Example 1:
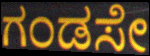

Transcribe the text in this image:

ಗಂಡಸೇ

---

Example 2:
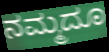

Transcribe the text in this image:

ನಮ್ಮದೂ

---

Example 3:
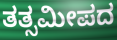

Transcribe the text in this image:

ತತ್ಸಮೀಪದ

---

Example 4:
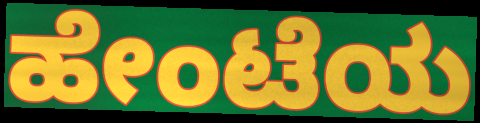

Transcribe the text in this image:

ಹೇಂಟೆಯ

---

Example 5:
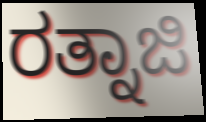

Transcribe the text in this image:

ರತ್ನಾಜಿ